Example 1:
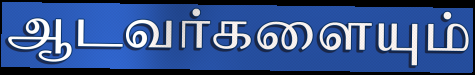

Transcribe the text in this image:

ஆடவர்களையும்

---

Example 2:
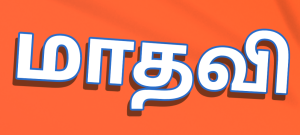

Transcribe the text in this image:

மாதவி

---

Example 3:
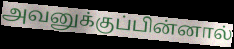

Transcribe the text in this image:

அவனுக்குப்பின்னால்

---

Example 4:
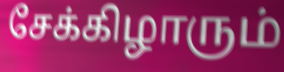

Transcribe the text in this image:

சேக்கிழாரும்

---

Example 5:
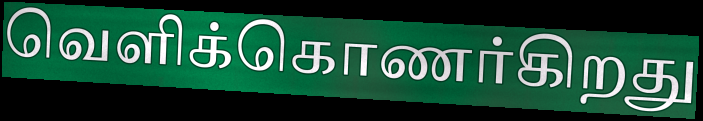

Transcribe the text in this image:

வெளிக்கொணர்கிறது